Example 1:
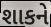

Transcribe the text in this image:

શાકને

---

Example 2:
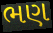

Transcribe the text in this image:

ભણ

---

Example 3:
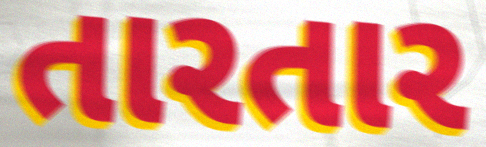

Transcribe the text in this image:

તારતાર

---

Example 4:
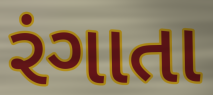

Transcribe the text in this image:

રંગાતા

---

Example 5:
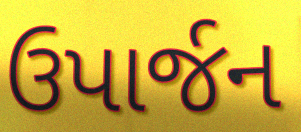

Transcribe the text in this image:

ઉપાર્જન